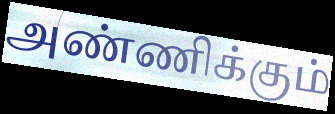
அண்ணிக்கும்